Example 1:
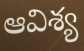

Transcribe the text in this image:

ఆవిశ్య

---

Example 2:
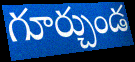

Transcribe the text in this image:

గూర్చుండ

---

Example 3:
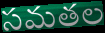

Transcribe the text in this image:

సమతల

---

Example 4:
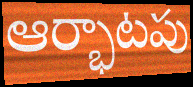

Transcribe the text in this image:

ఆర్భాటపు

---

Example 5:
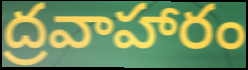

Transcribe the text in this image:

ద్రవాహారం